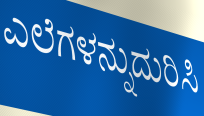
ಎಲೆಗಳನ್ನುದುರಿಸಿ